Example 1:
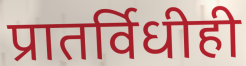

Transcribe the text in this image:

प्रातर्विधीही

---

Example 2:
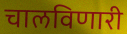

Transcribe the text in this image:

चालविणारी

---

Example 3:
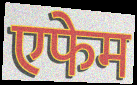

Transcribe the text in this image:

एफेम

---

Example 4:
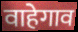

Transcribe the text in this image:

वाहेगाव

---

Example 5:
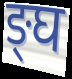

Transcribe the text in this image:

ङ्घ